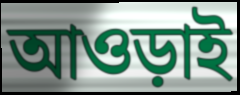
আওড়াই